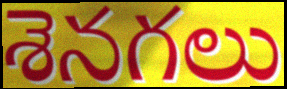
శెనగలు